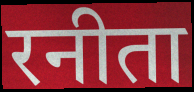
रनीता